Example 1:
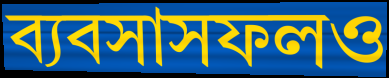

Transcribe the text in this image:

ব্যবসাসফলও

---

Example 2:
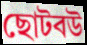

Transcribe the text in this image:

ছোটবউ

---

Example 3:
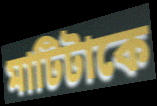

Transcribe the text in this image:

মাটিটাকে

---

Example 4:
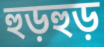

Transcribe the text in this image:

হুড়হুড়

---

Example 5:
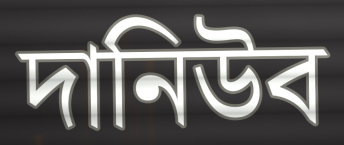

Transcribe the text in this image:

দানিউব